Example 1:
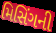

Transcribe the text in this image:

મિસિંગની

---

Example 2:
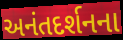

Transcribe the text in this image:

અનંતદર્શનના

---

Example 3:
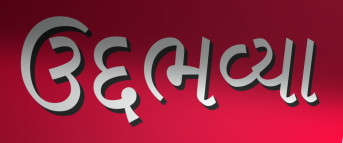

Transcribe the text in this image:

ઉદ્દભવ્યા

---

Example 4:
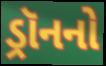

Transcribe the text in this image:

ડ્રૉનનો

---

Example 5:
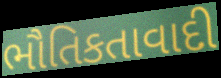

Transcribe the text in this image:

ભૌતિકતાવાદી